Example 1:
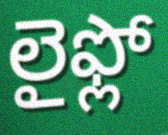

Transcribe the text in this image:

లైఫ్లో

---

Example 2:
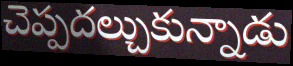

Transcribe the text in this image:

చెప్పదల్చుకున్నాడు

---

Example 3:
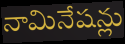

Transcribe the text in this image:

నామినేషన్లు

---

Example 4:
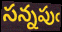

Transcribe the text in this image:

సన్నపుఁ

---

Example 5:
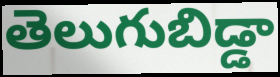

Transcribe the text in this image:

తెలుగుబిడ్డా